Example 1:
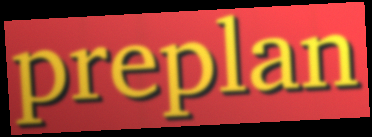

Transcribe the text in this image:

preplan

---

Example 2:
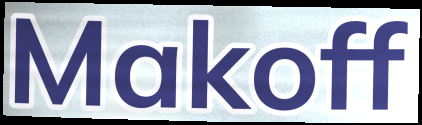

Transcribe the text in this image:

Makoff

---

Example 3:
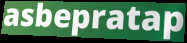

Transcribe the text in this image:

asbepratap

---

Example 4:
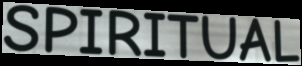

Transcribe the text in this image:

SPIRITUAL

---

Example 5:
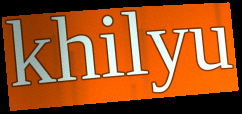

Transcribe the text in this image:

khilyu